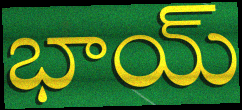
భాయ్